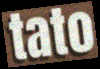
tato